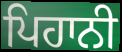
ਪਿਹਾਨੀ